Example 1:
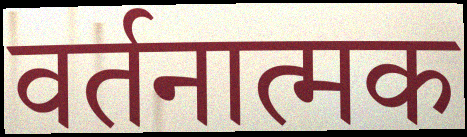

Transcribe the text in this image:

वर्तनात्मक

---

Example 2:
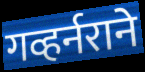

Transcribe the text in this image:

गव्हर्नराने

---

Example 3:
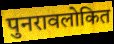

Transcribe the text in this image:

पुनरावलोकित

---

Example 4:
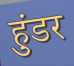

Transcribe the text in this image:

हुंडर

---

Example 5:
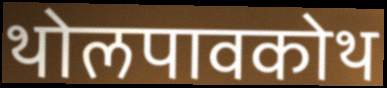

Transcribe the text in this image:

थोलपावकोथ